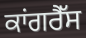
ਕਾਂਗਰੈੱਸ